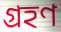
গ্রহণ